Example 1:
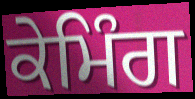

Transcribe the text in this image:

ਕੇਮਿੰਗ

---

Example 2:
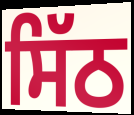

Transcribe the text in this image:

ਸਿੱਠ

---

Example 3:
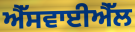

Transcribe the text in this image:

ਐੱਸਵਾਈਐੱਲ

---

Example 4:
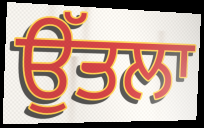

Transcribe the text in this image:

ਉੱਤਲਾ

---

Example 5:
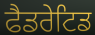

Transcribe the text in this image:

ਫੈਡਰੇਟਿਡ